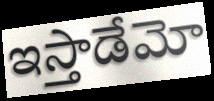
ఇస్తాడేమో